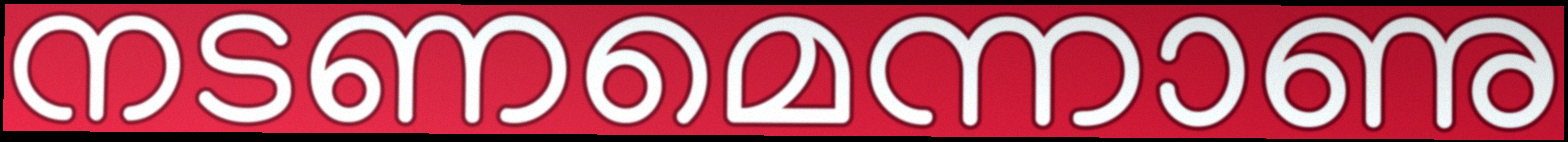
നടണമെന്നാണു